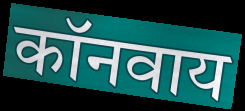
कॉनवाय